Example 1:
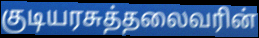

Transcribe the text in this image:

குடியரசுத்தலைவரின்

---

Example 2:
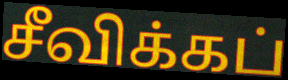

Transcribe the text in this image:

சீவிக்கப்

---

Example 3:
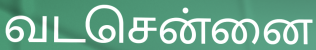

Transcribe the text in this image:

வடசென்னை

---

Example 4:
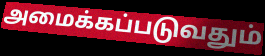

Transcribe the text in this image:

அமைக்கப்படுவதும்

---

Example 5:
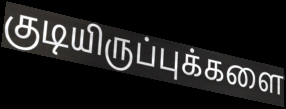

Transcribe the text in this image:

குடியிருப்புக்களை